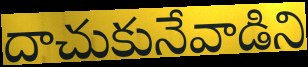
దాచుకునేవాడిని